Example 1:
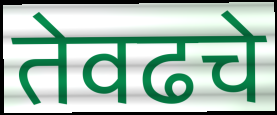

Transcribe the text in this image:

तेवढचे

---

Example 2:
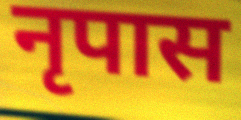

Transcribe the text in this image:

नृपास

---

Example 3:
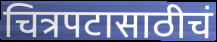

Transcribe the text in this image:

चित्रपटासाठीचं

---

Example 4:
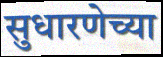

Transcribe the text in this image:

सुधारणेच्या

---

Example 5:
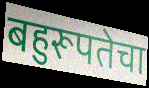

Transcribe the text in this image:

बहुरूपतेचा